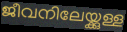
ജീവനിലേയ്ക്കുള്ള